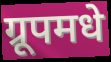
ग्रूपमधे